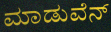
ಮಾಡುವೆನ್